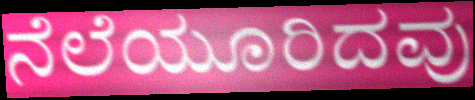
ನೆಲೆಯೂರಿದವು